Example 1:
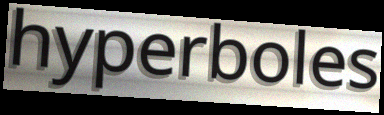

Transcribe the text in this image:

hyperboles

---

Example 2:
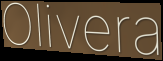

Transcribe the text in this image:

Olivera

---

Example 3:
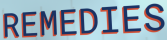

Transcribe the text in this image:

REMEDIES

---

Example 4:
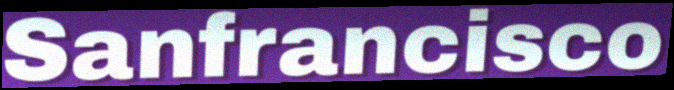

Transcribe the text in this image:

Sanfrancisco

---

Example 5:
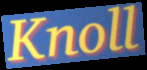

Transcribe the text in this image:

Knoll